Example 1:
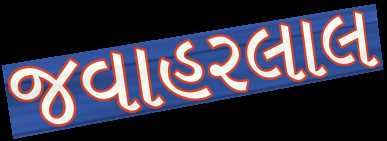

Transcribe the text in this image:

જવાહરલાલ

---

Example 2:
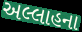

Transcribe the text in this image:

અલ્લાહના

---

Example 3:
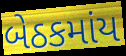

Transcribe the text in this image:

બેઠકમાંય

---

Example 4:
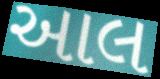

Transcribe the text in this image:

આલ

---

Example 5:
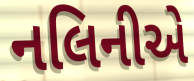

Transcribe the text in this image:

નલિનીએ